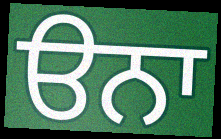
ੳਨਾ